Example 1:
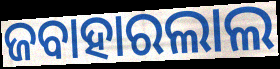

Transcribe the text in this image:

ଜବାହାରଲାଲ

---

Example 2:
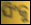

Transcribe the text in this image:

ସିଂକୁ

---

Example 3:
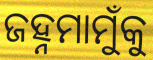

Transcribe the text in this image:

ଜହ୍ନମାମୁଁକୁ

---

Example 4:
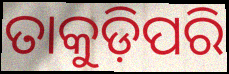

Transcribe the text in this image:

ତାକୁଡ଼ିପରି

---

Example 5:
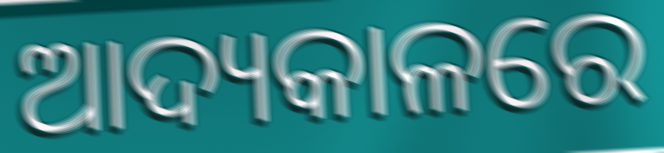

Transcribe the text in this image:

ଆଦ୍ୟକାଳରେ